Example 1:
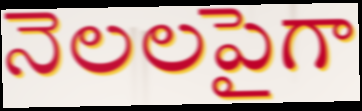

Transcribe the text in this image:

నెలలపైగా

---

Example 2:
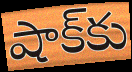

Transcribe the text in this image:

షాక్‌కు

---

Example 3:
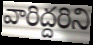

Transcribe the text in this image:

వారిద్దరిని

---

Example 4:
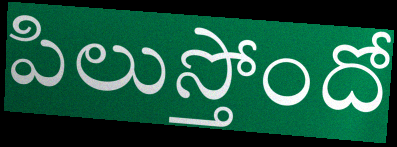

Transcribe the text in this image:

పిలుస్తోందో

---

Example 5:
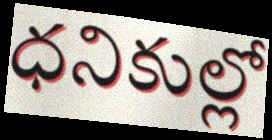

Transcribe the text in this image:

ధనికుల్లో